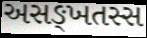
અસઙ્ખતસ્સ